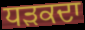
ਧੜਕਦਾ